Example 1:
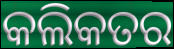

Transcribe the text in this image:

କଲିକତର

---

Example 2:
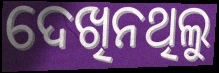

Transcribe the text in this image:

ଦେଖିନଥିଲୁ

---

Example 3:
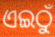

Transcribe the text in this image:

ଏଇଠୁଁ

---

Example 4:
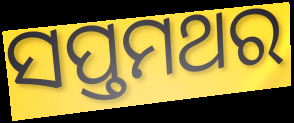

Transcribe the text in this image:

ସପ୍ତମଥର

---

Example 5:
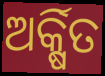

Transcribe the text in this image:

ଅର୍କ୍ଷିତ